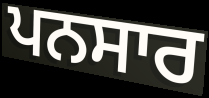
ਪਨਸਾਰ